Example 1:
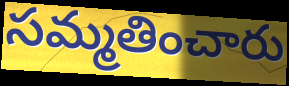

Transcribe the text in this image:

సమ్మతించారు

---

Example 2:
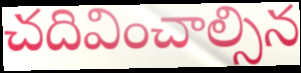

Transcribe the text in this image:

చదివించాల్సిన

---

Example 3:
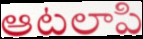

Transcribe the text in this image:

ఆటలాపి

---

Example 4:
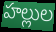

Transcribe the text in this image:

హల్లుల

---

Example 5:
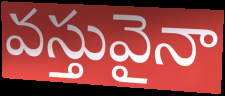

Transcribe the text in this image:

వస్తువైనా